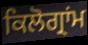
ਕਿਲੋਗ੍ਰਾਂਮ